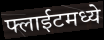
फ्लाईटमध्ये